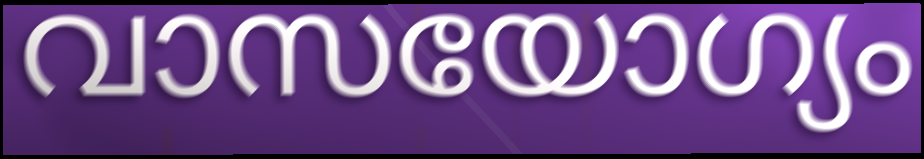
വാസയോഗ്യം